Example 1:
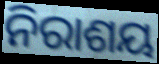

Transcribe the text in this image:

ନିରାଶୟ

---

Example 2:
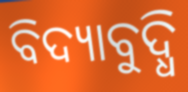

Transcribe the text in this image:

ବିଦ୍ୟାବୁଦ୍ଧି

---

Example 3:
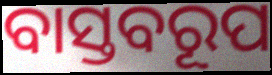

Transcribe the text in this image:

ବାସ୍ତବରୂପ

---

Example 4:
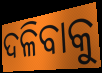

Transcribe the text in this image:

ଦଳିବାକୁ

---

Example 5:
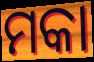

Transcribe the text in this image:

ମକା